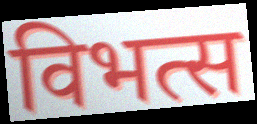
विभत्स